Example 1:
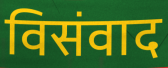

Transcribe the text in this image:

विसंवाद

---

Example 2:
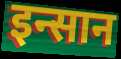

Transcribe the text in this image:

इन्सान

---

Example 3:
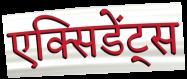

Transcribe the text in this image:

एक्सिडेंट्स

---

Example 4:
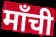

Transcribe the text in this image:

माँची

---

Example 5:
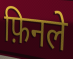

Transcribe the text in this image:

फ़िनले